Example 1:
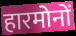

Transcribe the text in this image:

हारमोनों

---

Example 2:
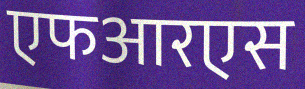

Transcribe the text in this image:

एफआरएस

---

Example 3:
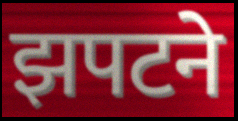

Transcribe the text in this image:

झपटने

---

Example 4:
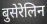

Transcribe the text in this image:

बुसेरेलिन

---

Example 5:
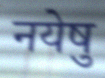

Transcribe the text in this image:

नयेषु